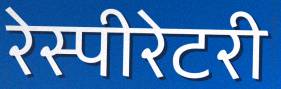
रेस्पीरेटरी